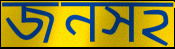
জনসহ